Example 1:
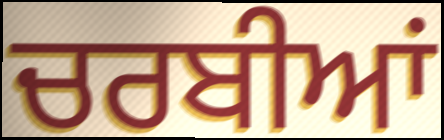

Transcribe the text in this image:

ਚਰਬੀਆਂ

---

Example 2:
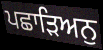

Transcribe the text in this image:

ਪਛਾੜਿਅਨੁ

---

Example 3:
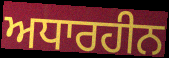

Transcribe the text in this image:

ਅਧਾਰਹੀਨ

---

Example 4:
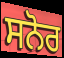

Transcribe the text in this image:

ਸਨੋਰ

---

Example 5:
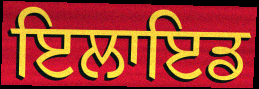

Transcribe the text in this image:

ਇਲਾਇਡ